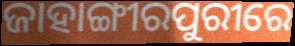
ଜାହାଙ୍ଗୀରପୁରୀରେ